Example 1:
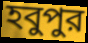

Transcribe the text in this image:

হবুপুর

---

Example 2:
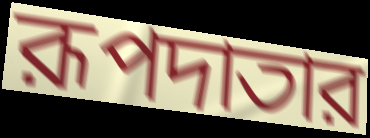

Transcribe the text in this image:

রূপদাতার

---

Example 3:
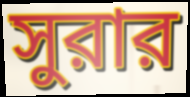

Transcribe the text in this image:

সুরার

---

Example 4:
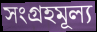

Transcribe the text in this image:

সংগ্রহমূল্য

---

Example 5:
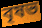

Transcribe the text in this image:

বৃষভ